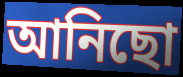
আনিছো